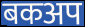
बकअप